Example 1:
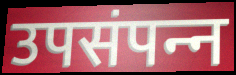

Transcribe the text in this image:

उपसंपन्न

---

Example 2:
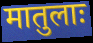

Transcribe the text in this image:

मातुलाः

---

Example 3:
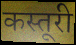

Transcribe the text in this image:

कस्तूरी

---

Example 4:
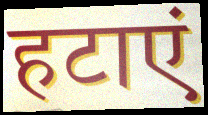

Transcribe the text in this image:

हटाएं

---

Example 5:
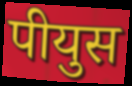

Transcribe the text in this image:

पीयुस